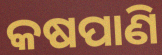
କଷପାଣି